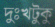
দুঃখটুকু